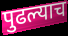
पुढल्याच